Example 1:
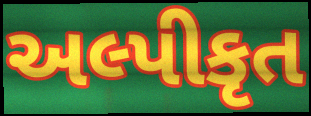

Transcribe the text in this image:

અલ્પીકૃત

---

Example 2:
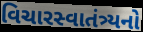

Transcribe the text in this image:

વિચારસ્વાતંત્ર્યનો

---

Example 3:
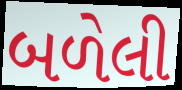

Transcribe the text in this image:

બળેલી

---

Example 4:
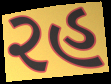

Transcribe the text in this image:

રહ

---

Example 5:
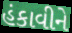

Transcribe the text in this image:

હંકાવીને